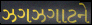
ઝગઝગાટને